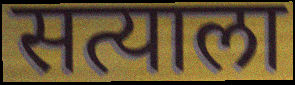
सत्याला